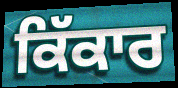
ਕਿੱਕਾਰ